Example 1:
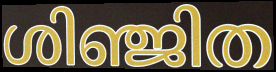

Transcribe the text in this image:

ശിഞ്ജിത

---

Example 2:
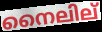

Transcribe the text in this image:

നൈലില്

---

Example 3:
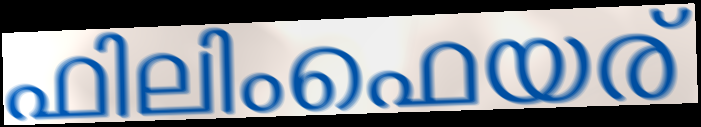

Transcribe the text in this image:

ഫിലിംഫെയര്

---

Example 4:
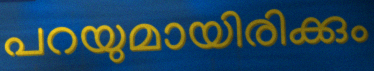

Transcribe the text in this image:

പറയുമായിരിക്കും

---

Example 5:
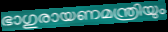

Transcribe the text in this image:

ഭാഗുരായണമന്ത്രിയും